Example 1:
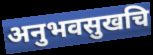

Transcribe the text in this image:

अनुभवसुखचि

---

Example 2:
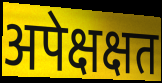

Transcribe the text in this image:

अपेक्षक्षत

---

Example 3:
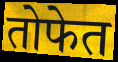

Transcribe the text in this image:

तोफेत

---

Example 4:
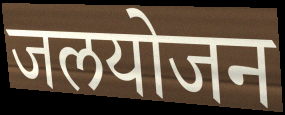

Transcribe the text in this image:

जलयोजन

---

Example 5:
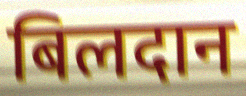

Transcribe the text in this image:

बिलदान